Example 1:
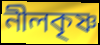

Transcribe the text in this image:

নীলকৃষ্ণ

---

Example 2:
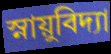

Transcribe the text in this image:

স্নায়ুবিদ্যা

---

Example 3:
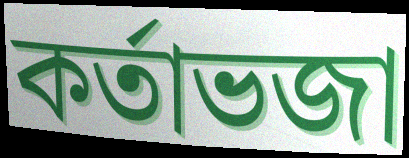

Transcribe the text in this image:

কর্তাভজা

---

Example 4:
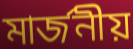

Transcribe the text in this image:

মার্জনীয়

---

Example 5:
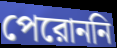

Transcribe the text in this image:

পেরোননি